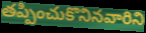
తప్పించుకొనినవారిని